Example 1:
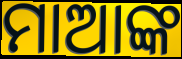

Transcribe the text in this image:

ମାଆଙ୍କ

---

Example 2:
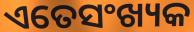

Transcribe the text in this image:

ଏତେସଂଖ୍ୟକ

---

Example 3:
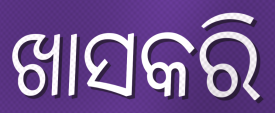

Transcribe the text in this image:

ଖାସକରି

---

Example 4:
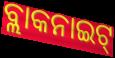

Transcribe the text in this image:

ବ୍ଲାକନାଇଟ୍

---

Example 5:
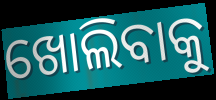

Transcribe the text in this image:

ଖୋଲିବାକୁ